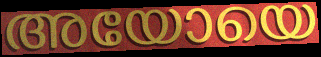
അയോയെ